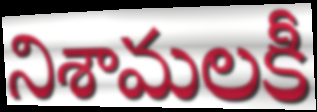
నిశామలకీ